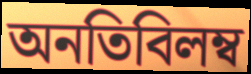
অনতিবিলম্ব